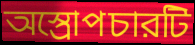
অস্ত্রোপচারটি